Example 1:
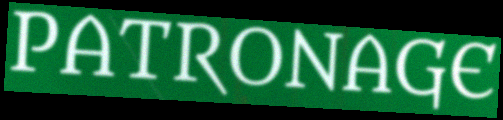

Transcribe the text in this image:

PATRONAGE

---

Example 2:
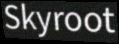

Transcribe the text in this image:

Skyroot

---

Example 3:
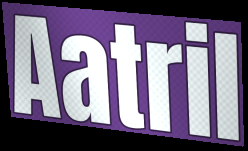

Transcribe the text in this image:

Aatril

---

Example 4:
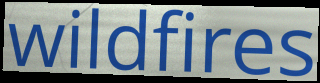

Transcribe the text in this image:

wildfires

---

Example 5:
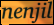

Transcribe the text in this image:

nenjil